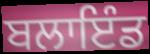
ਬਲਾਇੰਡ